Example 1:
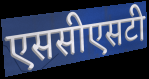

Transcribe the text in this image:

एससीएसटी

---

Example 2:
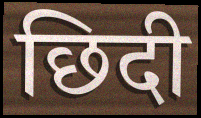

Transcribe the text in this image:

छिदी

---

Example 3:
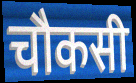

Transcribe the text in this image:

चौकसी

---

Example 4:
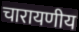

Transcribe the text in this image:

चारायणीय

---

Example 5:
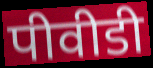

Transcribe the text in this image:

पीवीडी